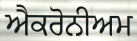
ਐਕਰੋਨੀਅਮ